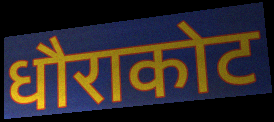
धौराकोट